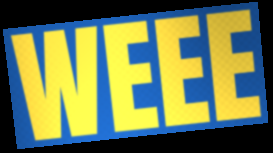
WEEE